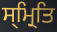
ਸ੍ਮ੍ਰਿਤਿ